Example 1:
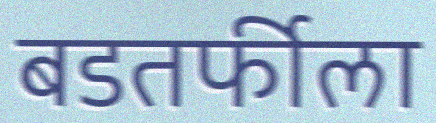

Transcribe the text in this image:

बडतर्फीला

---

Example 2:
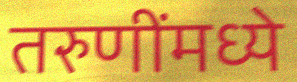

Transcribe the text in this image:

तरुणींमध्ये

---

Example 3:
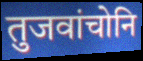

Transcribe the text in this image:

तुजवांचोनि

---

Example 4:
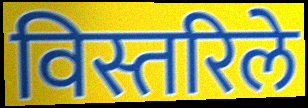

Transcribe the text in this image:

विस्तरिले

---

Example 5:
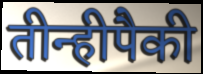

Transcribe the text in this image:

तीन्हीपैकी